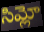
సిమ్లో